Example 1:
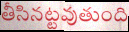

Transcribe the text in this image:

తీసినట్టవుతుంది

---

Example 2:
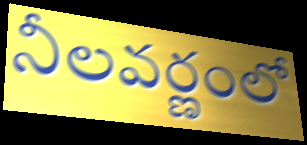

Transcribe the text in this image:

నీలవర్ణంలో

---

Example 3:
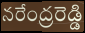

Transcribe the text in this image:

నరేంద్రరెడ్డి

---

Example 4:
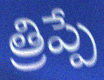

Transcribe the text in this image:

త్రిప్పే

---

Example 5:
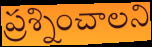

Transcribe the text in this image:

ప్రశ్నించాలని